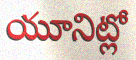
యూనిట్లో